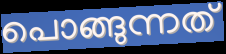
പൊങ്ങുന്നത്